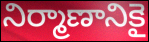
నిర్మాణానికై